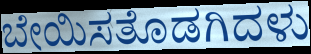
ಬೇಯಿಸತೊಡಗಿದಳು